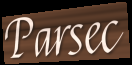
Parsec